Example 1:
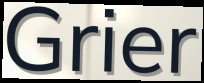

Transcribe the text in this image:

Grier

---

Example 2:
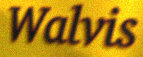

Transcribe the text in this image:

Walvis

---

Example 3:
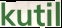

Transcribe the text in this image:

kutil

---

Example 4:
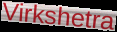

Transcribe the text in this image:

Virkshetra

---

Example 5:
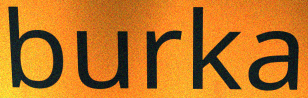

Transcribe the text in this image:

burka